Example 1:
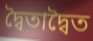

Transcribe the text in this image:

দ্বৈতাদ্বৈত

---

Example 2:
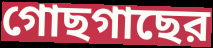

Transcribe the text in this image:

গোছগাছের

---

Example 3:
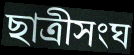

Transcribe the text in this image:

ছাত্রীসংঘ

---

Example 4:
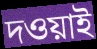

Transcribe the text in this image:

দওয়াই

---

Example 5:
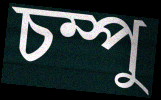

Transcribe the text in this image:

চম্পু